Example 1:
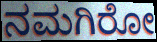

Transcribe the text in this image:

ನಮಗಿರೋ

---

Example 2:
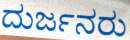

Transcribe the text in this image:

ದುರ್ಜನರು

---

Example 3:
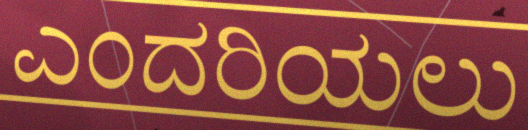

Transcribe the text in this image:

ಎಂದರಿಯಲು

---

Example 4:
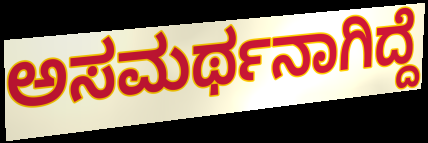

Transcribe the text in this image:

ಅಸಮರ್ಥನಾಗಿದ್ದೆ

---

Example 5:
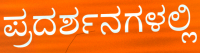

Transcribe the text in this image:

ಪ್ರದರ್ಶನಗಳಲ್ಲಿ